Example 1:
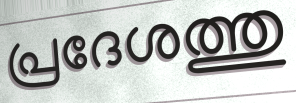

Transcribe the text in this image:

പ്രദേശത്തു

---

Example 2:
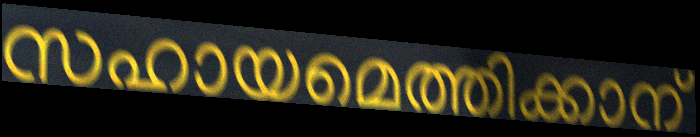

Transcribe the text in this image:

സഹായമെത്തിക്കാന്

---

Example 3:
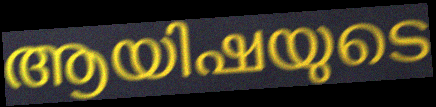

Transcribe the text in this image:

ആയിഷയുടെ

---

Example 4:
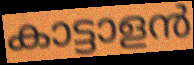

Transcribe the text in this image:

കാട്ടാളൻ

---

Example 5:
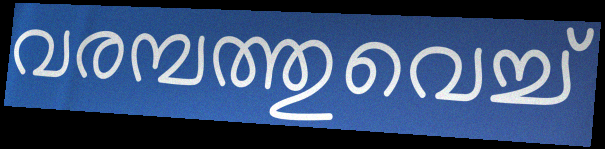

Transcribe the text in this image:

വരമ്പത്തുവെച്ച്